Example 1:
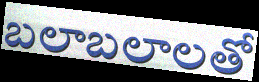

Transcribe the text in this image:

బలాబలాలతో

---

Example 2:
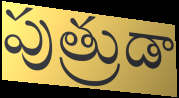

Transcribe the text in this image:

పుత్రుడా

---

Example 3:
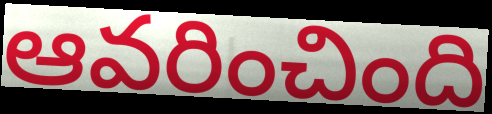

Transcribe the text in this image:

ఆవరించింది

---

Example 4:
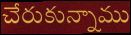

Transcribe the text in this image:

చేరుకున్నాము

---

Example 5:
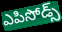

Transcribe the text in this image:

ఎపిసోడ్స్